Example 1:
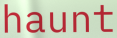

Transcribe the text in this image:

haunt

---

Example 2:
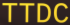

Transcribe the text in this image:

TTDC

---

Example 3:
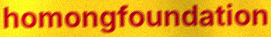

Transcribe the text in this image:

homongfoundation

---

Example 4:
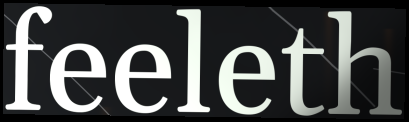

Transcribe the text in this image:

feeleth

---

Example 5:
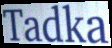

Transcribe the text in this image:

Tadka